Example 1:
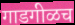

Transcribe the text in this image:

गाडगीळच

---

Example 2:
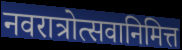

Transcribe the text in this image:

नवरात्रोत्सवानिमित्त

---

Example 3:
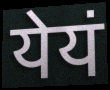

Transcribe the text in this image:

येयं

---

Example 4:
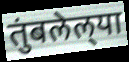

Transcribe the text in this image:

तुंबलेल्या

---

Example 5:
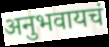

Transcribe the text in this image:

अनुभवायचं